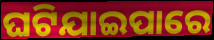
ଘଟିଯାଇପାରେ